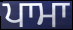
ਪਾਮਾ